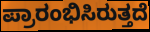
ಪ್ರಾರಂಭಿಸಿರುತ್ತದೆ